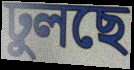
ঢুলছে